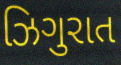
ઝિગુરાત